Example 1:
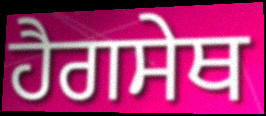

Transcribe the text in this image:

ਹੈਗਸੇਥ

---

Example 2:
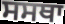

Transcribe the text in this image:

ਸਸਥਾ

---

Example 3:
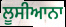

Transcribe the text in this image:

ਲੂਸੀਆਨਾ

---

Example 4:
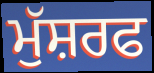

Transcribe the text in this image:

ਮੁੱਸ਼ਰਫ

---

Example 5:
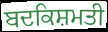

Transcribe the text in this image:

ਬਦਕਿਸ਼ਮਤੀ